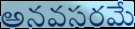
అనవసరమే